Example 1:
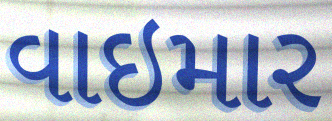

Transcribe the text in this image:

વાઇમાર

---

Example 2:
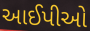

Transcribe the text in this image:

આઈપીઓ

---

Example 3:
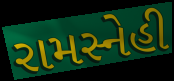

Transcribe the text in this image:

રામસ્નેહી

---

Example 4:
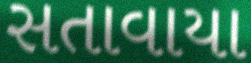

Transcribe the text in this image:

સતાવાયા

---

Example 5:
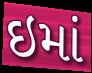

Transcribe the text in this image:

ઇમાં